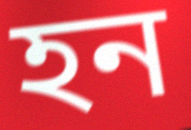
হন